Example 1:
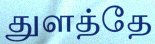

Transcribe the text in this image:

துளத்தே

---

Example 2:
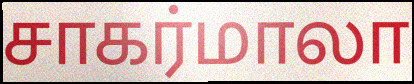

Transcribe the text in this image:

சாகர்மாலா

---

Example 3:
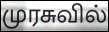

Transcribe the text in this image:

முரசுவில்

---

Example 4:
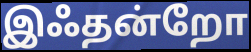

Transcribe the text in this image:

இஃதன்றோ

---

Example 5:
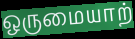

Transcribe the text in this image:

ஒருமையாற்